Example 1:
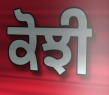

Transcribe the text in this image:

ਕੋਝੀ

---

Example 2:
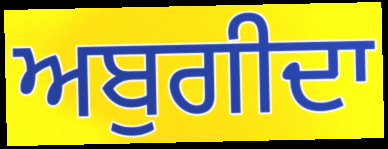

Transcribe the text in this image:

ਅਬੁਗੀਦਾ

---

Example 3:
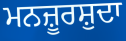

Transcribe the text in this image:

ਮਨਜ਼ੂਰਸ਼ੁਦਾ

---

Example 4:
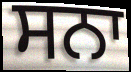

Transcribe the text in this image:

ਸਨਾ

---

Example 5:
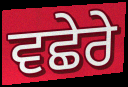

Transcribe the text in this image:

ਵਛੇਰੇ